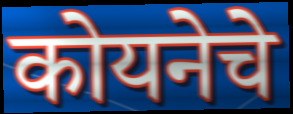
कोयनेचे